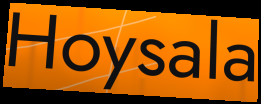
Hoysala